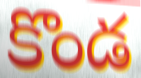
కొండ